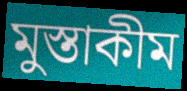
মুস্তাকীম